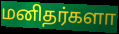
மனிதர்களா